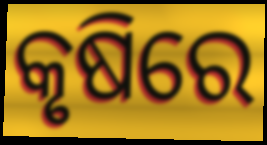
କୃଷିରେ